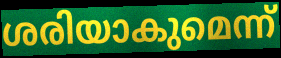
ശരിയാകുമെന്ന്